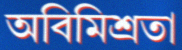
অবিমিশ্রতা